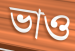
ভাও